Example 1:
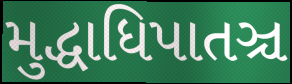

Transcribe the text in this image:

મુદ્ધાધિપાતઞ્ચ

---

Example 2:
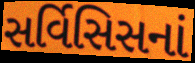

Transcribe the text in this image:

સર્વિસિસનાં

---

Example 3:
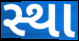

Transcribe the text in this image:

સ્થા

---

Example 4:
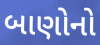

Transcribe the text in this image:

બાણોનો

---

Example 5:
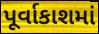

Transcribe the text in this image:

પૂર્વાકાશમાં